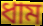
ধাম